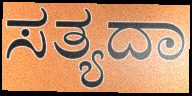
ಸತ್ಯದಾ